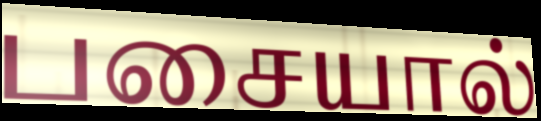
பசையால்